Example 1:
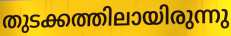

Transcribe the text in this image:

തുടക്കത്തിലായിരുന്നു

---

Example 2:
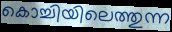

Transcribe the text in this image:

കൊച്ചിയിലെത്തുന്ന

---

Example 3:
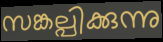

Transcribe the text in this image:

സങ്കല്പിക്കുന്നു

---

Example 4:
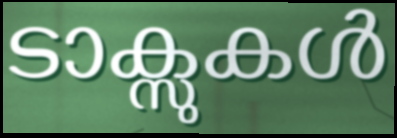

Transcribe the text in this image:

ടാക്സുകൾ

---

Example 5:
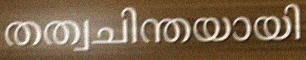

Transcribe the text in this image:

തത്വചിന്തയായി